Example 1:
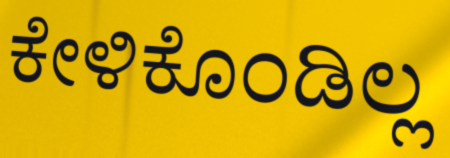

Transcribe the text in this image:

ಕೇಳಿಕೊಂಡಿಲ್ಲ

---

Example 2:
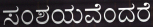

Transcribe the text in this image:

ಸಂಶಯವೆಂದರೆ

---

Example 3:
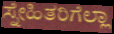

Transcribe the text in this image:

ಸ್ನೇಹಿತರಿಗೆಲ್ಲಾ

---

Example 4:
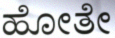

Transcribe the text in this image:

ಹೋತೇ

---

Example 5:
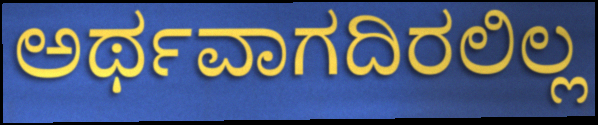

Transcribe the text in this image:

ಅರ್ಥವಾಗದಿರಲಿಲ್ಲ